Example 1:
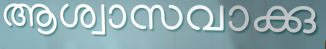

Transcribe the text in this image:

ആശ്വാസവാക്കു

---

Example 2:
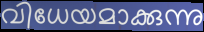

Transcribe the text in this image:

വിധേയമാക്കുന്നു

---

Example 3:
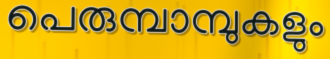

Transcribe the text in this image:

പെരുമ്പാമ്പുകളും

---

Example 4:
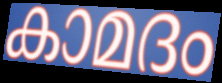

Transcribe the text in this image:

കാമദം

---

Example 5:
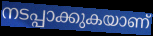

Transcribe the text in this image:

നടപ്പാക്കുകയാണ്